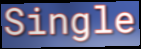
Single